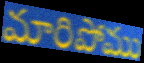
మారిపోము